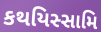
કથયિસ્સામિ